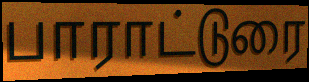
பாராட்டுரை